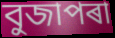
বুজাপৰা